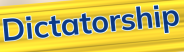
Dictatorship